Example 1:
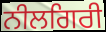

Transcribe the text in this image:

ਨੀਲਗਿਰੀ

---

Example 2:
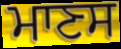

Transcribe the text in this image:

ਮਾਣਸ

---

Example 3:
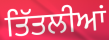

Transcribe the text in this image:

ਤਿੱਤਲੀਆਂ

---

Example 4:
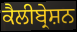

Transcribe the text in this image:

ਕੈਲੀਬ੍ਰੇਸ਼ਨ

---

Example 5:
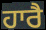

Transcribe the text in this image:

ਹਾਰੈ